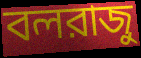
বলরাজু